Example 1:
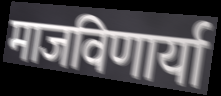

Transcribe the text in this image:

माजविणार्या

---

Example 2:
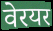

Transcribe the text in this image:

वेरयर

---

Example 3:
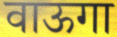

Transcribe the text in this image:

वाऊगा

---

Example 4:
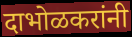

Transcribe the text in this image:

दाभोळकरांनी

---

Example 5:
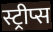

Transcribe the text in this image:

स्ट्रीप्स